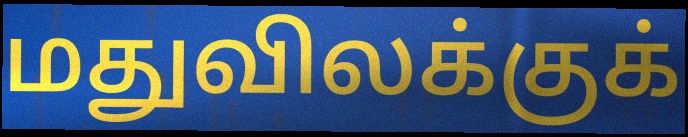
மதுவிலக்குக்